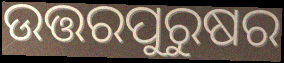
ଉତ୍ତରପୁରୁଷର